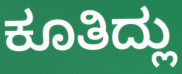
ಕೂತಿದ್ಲು